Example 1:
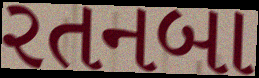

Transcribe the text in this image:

રતનબા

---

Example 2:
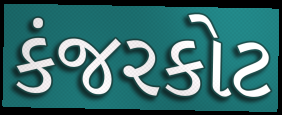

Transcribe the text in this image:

કંજરકોટ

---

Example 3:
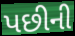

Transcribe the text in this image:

પછીની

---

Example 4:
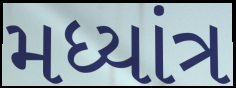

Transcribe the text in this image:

મધ્યાંત્ર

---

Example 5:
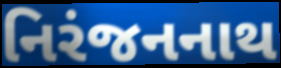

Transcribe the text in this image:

નિરંજનનાથ